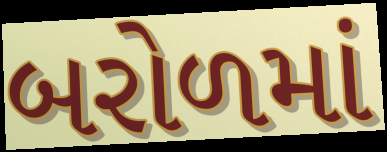
બરોળમાં